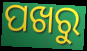
ପଖରୁ